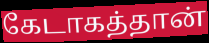
கேடாகத்தான்